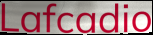
Lafcadio